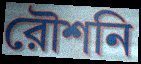
রৌশনি